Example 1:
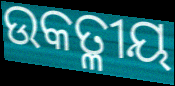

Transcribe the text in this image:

ଉକତ୍ଳୀୟ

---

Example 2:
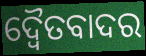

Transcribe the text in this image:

ଦ୍ୱୈତବାଦର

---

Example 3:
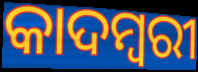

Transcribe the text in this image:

କାଦମ୍ବରୀ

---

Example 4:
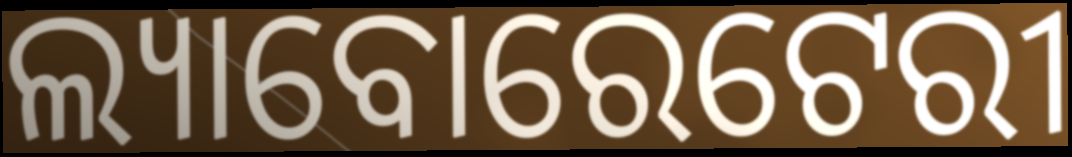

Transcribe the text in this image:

ଲ୍ୟାବୋରେଟେରୀ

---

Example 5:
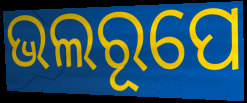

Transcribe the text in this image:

ଭଲରୂପେ